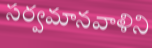
సర్వమానవాళిని